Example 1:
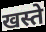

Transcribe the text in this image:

खस्ते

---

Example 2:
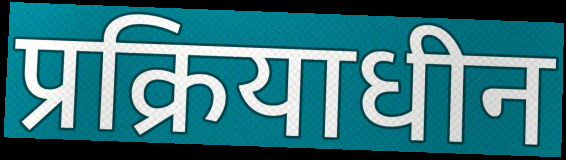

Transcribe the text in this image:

प्रक्रियाधीन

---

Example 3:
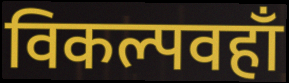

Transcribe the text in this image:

विकल्पवहाँ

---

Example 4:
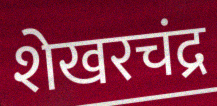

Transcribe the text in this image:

शेखरचंद्र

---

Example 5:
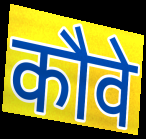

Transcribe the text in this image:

कौवे